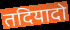
तदियादो